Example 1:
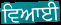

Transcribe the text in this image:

ਵਿਆਈ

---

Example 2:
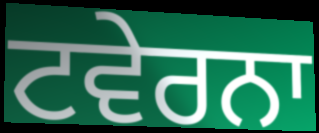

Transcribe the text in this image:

ਟਵੇਰਨਾ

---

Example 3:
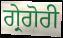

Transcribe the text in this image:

ਗ੍ਰੇਗੋਰੀ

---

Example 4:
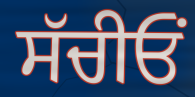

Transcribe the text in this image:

ਸੱਚੀਓਂ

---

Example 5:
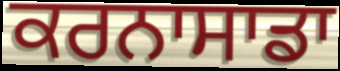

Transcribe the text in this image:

ਕਰਨਾਸਾਡਾ